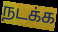
நடக்க